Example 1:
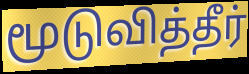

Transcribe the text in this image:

மூடுவித்தீர்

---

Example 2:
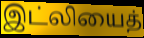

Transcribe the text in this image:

இட்லியைத்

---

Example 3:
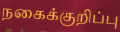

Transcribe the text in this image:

நகைக்குறிப்பு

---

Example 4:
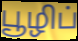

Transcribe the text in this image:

பூழிப்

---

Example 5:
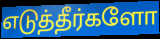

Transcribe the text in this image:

எடுத்தீர்களோ